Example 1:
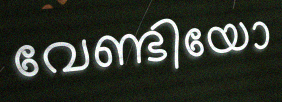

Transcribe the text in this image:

വേണ്ടിയോ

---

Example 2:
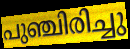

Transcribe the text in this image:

പുഞ്ചിരിച്ചു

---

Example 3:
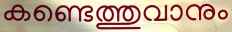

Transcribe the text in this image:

കണ്ടെത്തുവാനും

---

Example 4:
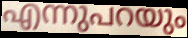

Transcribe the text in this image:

എന്നുപറയും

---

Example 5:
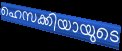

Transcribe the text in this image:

ഹെസക്കിയായുടെ